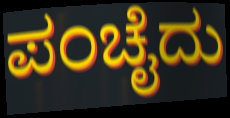
ಪಂಚೈದು